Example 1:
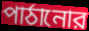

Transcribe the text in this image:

পাঠানোর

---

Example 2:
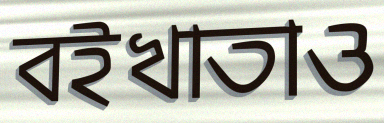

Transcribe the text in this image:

বইখাতাও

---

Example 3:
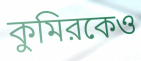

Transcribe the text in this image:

কুমিরকেও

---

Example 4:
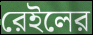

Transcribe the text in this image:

রেইলের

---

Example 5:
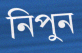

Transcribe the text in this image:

নিপুন